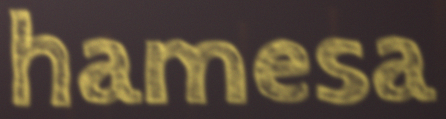
hamesa